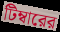
টিম্বারের